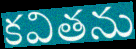
కవితను